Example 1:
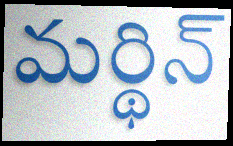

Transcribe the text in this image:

మర్థిన్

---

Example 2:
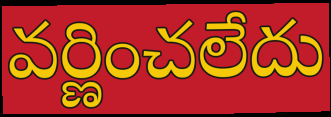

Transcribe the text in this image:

వర్ణించలేదు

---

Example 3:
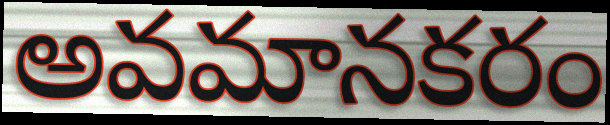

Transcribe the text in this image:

అవమానకరం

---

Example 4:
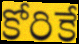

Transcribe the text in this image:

కోరికే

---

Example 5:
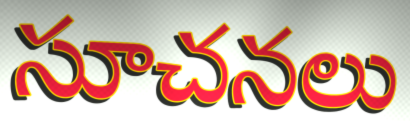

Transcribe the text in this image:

సూచనలు